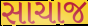
સાચાજ